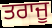
ਤਰਾਜੂ